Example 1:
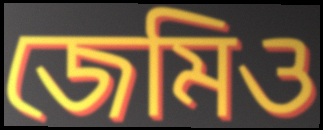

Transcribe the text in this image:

জেমিও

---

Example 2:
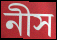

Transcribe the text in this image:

নীস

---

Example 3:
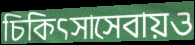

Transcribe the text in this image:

চিকিৎসাসেবায়ও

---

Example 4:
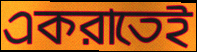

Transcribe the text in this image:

একরাতেই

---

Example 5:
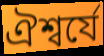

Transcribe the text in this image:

ঐশ্বর্যে